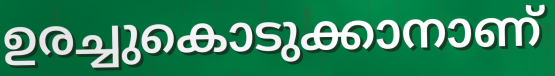
ഉരച്ചുകൊടുക്കാനാണ്